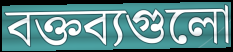
বক্তব্যগুলো